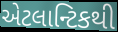
એટલાન્ટિકથી